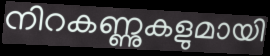
നിറകണ്ണുകളുമായി